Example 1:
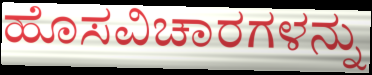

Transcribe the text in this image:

ಹೊಸವಿಚಾರಗಳನ್ನು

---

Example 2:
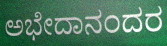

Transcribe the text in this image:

ಅಭೇದಾನಂದರ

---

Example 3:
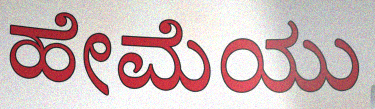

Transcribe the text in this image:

ಹೇಮೆಯು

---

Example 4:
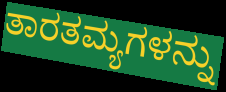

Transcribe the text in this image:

ತಾರತಮ್ಯಗಳನ್ನು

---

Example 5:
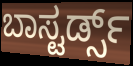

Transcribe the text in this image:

ಬಾಸ್ಟರ್ಡ್ಸ್